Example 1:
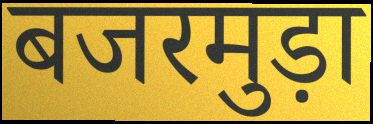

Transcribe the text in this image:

बजरमुड़ा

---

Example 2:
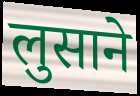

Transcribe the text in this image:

लुसाने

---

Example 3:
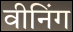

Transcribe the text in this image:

वीनिंग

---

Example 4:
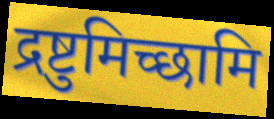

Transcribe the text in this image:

द्रष्टुमिच्छामि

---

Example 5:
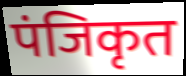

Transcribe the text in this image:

पंजिकृत